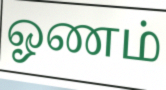
ஓணம்